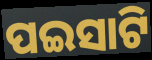
ପଇସାଟି